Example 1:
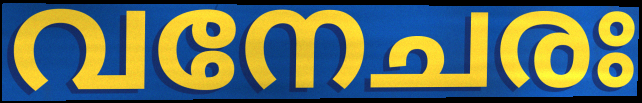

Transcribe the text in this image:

വനേചരഃ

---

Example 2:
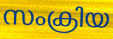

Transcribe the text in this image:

സംക്രിയ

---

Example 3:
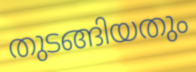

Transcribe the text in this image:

തുടങ്ങിയതും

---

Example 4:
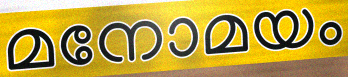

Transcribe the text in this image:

മനോമയം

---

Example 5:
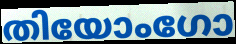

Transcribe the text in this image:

തിയോംഗോ